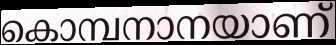
കൊമ്പനാനയാണ്